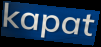
kapat